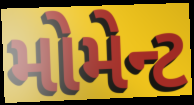
મોમેન્ટ